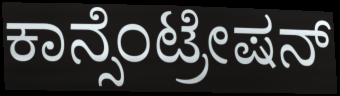
ಕಾನ್ಸೆಂಟ್ರೇಷನ್